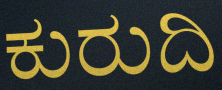
ಕುರುದಿ